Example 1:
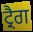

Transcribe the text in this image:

ਟ੍ਰੈਗ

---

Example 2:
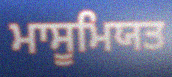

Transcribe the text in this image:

ਮਾਸੂਮਿਯਤ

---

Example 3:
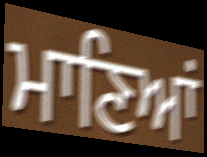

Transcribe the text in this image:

ਮਾਣਿਆਂ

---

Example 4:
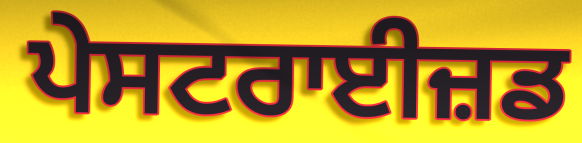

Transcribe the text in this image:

ਪੇਸਟਰਾਈਜ਼ਡ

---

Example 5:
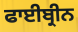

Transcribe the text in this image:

ਫਾਈਬ੍ਰੀਨ